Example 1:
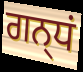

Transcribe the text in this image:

ਗਨ੍ਧਂ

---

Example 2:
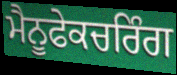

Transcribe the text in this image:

ਮੈਨੂਫੇਕਚਰਿੰਗ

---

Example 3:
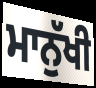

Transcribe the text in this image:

ਮਾਨੁੱਖੀ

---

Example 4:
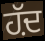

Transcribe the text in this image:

ਹ਼ੱਦ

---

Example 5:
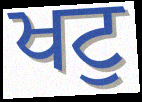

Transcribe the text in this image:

ਖਟੁ